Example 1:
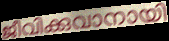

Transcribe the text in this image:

ജീവിക്കുവാനായി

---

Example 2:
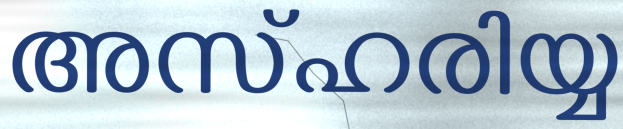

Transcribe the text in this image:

അസ്ഹരിയ്യ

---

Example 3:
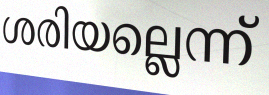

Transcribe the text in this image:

ശരിയല്ലെന്ന്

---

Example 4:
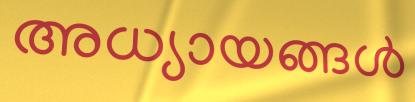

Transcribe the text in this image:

അധ്യായങ്ങൾ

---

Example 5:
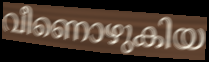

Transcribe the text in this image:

വീണൊഴുകിയ